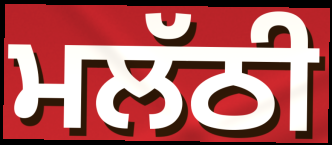
ਮਲੱਠੀ